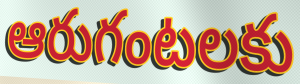
ఆరుగంటలకు